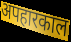
अपहारकाल